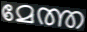
മേത്ത